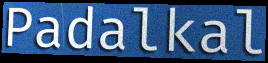
Padalkal